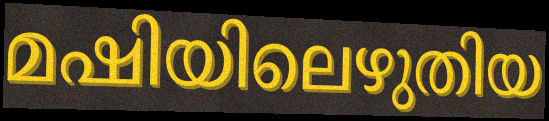
മഷിയിലെഴുതിയ